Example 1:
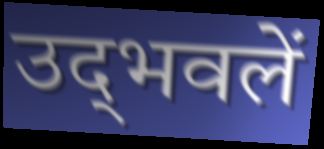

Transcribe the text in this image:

उद्‍भवलें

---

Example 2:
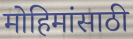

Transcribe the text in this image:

मोहिमांसाठी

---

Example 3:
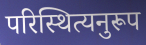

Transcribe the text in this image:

परिस्थित्यनुरूप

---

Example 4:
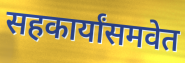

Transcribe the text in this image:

सहकार्यांसमवेत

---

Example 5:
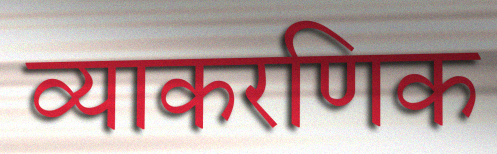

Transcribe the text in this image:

व्याकरणिक